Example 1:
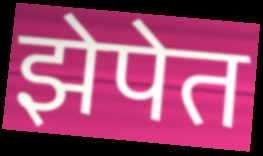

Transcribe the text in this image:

झेपेत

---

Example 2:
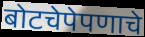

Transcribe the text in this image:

बोटचेपेपणाचे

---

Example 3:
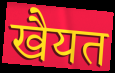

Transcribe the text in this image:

खैयत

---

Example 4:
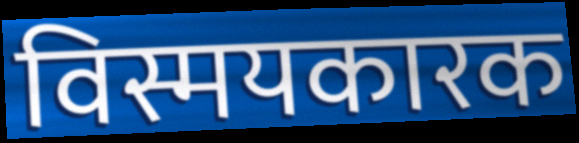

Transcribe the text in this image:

विस्मयकारक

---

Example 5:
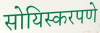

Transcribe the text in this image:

सोयिस्करपणे